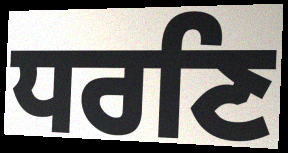
ਧਰਣਿ